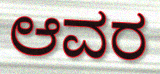
ಆವರ